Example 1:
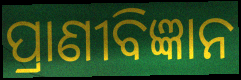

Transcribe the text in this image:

ପ୍ରାଣୀବିଜ୍ଞାନ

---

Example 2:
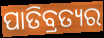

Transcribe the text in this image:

ପାତିବ୍ରତ୍ୟର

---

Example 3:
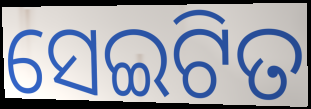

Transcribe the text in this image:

ସେଇଟିତ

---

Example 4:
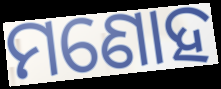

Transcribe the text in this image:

ମଣୋହ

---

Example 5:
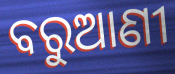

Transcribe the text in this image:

ବରୁଆଣୀ